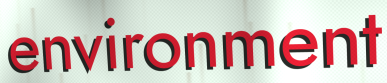
environment